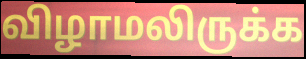
விழாமலிருக்க